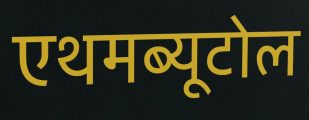
एथमब्यूटोल